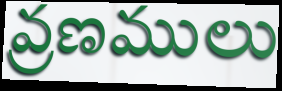
వ్రణములు